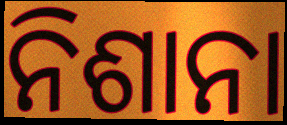
ନିଶାନା